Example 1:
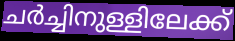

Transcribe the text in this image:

ചർച്ചിനുള്ളിലേക്ക്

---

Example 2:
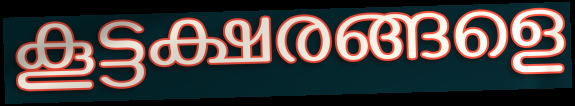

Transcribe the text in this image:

കൂട്ടക്ഷരങ്ങളെ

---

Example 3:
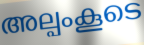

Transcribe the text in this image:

അല്പംകൂടെ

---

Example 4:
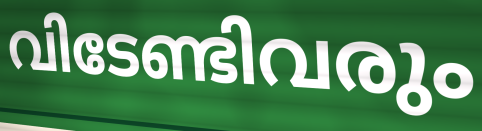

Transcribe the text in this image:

വിടേണ്ടിവരും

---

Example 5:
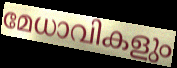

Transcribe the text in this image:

മേധാവികളും